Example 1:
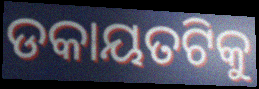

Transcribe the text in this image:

ଡକାୟତଟିକୁ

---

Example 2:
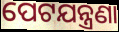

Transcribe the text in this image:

ପେଟଯନ୍ତ୍ରଣା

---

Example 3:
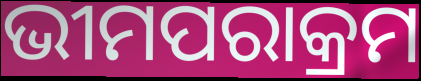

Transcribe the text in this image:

ଭୀମପରାକ୍ରମ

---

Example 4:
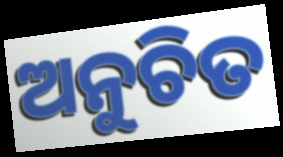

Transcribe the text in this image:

ଅନୁଚିତ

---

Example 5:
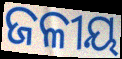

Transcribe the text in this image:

ଜଳୀୟ